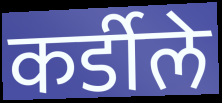
कर्डीले